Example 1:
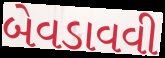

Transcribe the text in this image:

બેવડાવવી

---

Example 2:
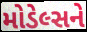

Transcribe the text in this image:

મોડેલ્સને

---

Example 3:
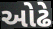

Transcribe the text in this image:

ઓઢે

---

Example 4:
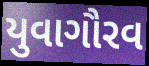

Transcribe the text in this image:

યુવાગૌરવ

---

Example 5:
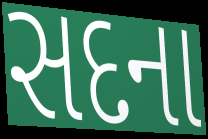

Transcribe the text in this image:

સદના